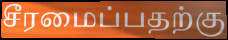
சீரமைப்பதற்கு